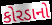
કોરડાનો